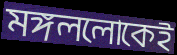
মঙ্গললোকেই